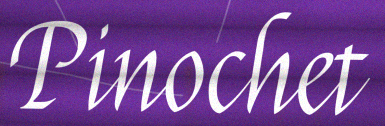
Pinochet